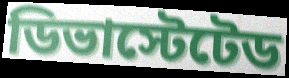
ডিভাস্টেটেড